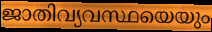
ജാതിവ്യവസ്ഥയെയും